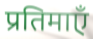
प्रतिमाएँ